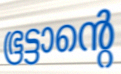
ഭൂട്ടാന്റെ